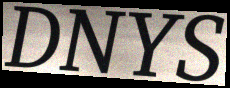
DNYS